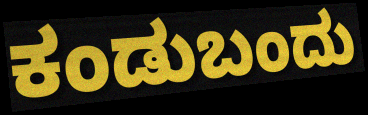
ಕಂಡುಬಂದು